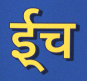
ई्च